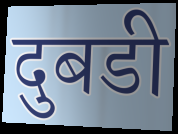
दुबडी